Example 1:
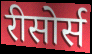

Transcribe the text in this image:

रीसोर्स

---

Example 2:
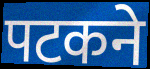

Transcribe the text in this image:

पटकने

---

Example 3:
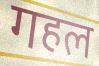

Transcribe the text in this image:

गहल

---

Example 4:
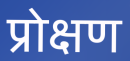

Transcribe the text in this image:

प्रोक्षण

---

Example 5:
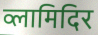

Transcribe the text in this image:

व्लामिदिर